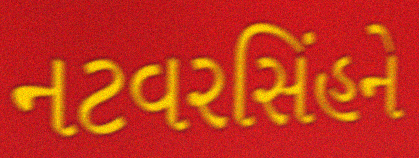
નટવરસિંહને